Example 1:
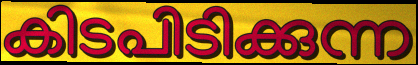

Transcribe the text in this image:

കിടപിടിക്കുന്ന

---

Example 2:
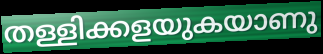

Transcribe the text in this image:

തള്ളിക്കളയുകയാണു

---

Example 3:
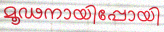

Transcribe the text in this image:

മൂഢനായിപ്പോയി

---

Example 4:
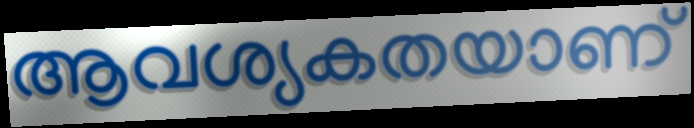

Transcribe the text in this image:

ആവശ്യകതയാണ്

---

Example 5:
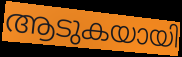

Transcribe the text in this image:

ആടുകയായി